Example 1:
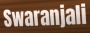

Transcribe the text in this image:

Swaranjali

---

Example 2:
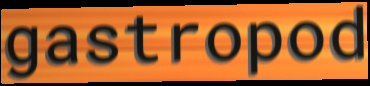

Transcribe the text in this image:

gastropod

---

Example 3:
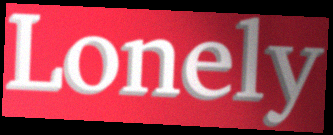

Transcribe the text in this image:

Lonely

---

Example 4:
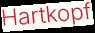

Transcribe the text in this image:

Hartkopf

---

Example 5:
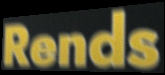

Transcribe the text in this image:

Rends